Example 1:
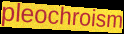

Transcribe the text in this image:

pleochroism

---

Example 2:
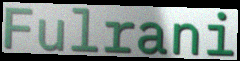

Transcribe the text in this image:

Fulrani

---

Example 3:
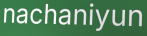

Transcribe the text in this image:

nachaniyun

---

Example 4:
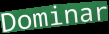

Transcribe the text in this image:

Dominar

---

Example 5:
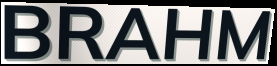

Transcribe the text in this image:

BRAHM